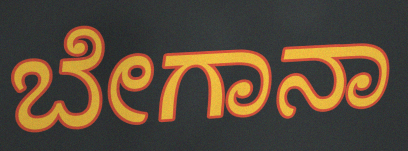
ಬೇಗಾನಾ